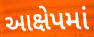
આક્ષેપમાં